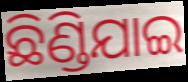
ଛିଣ୍ଡିଯାଇ